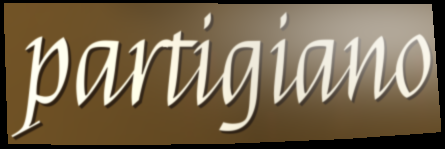
partigiano